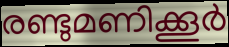
രണ്ടുമണിക്കൂർ